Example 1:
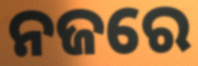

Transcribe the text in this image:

ନଜରେ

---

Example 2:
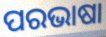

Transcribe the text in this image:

ପରଭାଷା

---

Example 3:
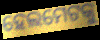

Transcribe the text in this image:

ହେଲମେଟକୁ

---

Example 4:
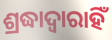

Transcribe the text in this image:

ଶ୍ରଦ୍ଧାଦ୍ୱାରାହିଁ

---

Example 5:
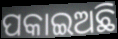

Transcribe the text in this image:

ପକାଇଅଛି